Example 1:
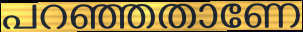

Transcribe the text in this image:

പറഞ്ഞതാണേ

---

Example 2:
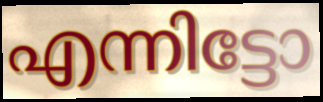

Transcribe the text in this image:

എന്നിട്ടോ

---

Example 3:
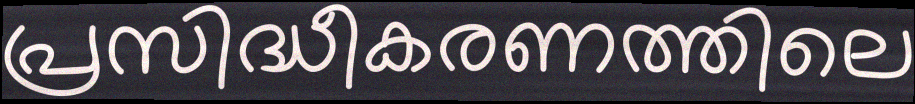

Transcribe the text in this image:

പ്രസിദ്ധീകരണത്തിലെ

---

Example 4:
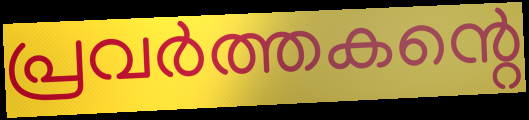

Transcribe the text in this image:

പ്രവർത്തകന്റെ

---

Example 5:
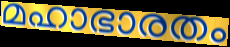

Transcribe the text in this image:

മഹാഭാരതം